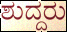
ಶುದ್ದರು